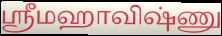
ஸ்ரீமஹாவிஷ்ணு